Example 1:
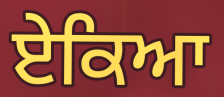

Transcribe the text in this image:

ਏਕਿਆ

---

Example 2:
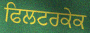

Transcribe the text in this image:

ਫਿਲਟਰਕੇਕ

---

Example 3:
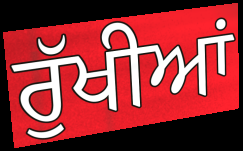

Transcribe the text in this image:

ਰੁੱਖੀਆਂ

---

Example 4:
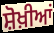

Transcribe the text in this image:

ਸ਼ੋਖ਼ੀਆਂ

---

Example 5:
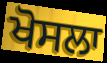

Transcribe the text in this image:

ਖੋਸਲਾ